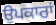
ਉਪਕਾਰਾਂ